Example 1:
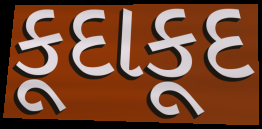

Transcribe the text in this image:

કૂદાકૂદ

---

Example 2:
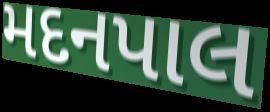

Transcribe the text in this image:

મદનપાલ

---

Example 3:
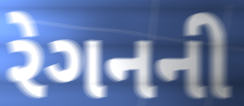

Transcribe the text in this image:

રેગનની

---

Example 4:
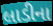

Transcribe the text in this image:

લાડીના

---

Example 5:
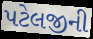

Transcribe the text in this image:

પટેલજીની